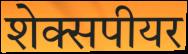
शेक्सपीयर